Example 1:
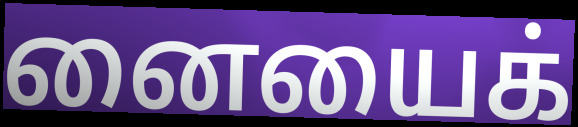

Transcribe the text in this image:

னையைக்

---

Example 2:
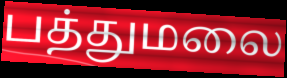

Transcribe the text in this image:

பத்துமலை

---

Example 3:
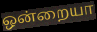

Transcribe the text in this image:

ஒன்றையா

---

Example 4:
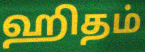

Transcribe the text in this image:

ஹிதம்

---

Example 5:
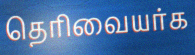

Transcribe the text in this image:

தெரிவையர்க